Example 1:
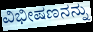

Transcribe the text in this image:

ವಿಭೀಷಣನನ್ನು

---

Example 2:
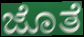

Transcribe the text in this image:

ಜೊತೆ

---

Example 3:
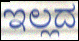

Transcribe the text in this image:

ಇಲ್ಲದ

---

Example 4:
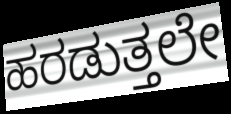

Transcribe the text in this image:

ಹರಡುತ್ತಲೇ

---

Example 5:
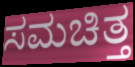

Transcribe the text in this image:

ಸಮಚಿತ್ತ